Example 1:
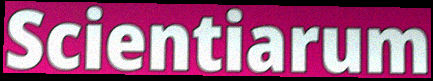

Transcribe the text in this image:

Scientiarum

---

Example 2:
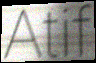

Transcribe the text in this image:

Atif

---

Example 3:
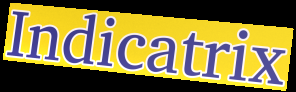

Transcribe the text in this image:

Indicatrix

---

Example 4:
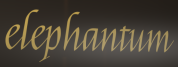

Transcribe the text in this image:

elephantum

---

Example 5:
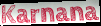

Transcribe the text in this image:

Karnana